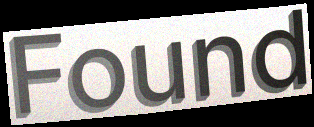
Found